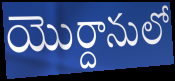
యొర్దానులో